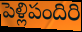
పెళ్లిపందిరి